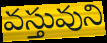
వస్తువుని